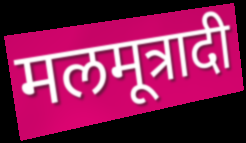
मलमूत्रादी